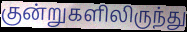
குன்றுகளிலிருந்து